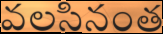
వలసినంత